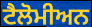
ਟੈਲੋਮੀਅਨ